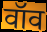
वॉव